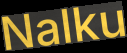
Nalku